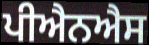
ਪੀਐਨਐਸ